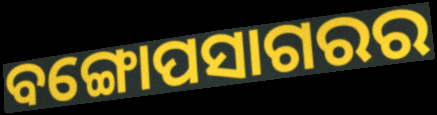
ବଙ୍ଗୋପସାଗରର